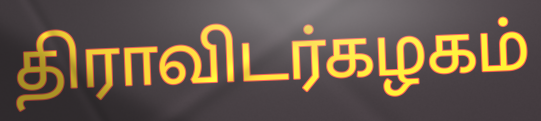
திராவிடர்கழகம்